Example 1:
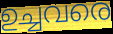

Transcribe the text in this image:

ഉച്ചവരെ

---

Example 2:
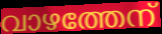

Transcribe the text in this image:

വാഴത്തേന്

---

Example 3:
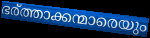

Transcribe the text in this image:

ഭര്ത്താക്കന്മാരെയും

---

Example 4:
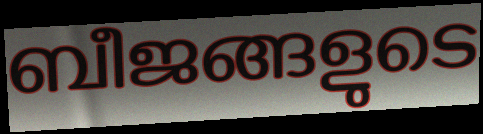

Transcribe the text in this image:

ബീജങ്ങളുടെ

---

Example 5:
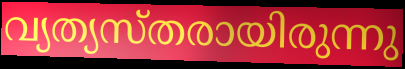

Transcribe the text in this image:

വ്യത്യസ്തരായിരുന്നു